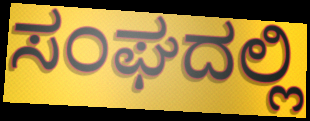
ಸಂಘದಲ್ಲಿ